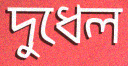
দুধেল